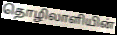
தொழிலாளியின்